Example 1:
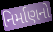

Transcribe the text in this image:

નિર્માણનો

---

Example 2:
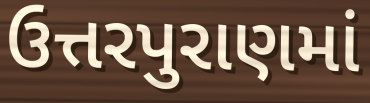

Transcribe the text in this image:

ઉત્તરપુરાણમાં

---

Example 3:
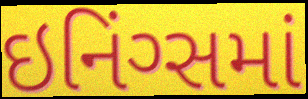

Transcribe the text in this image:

ઇનિંગ્સમાં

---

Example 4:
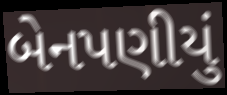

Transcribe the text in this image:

બેનપણીયું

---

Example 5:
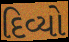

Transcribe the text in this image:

દિવ્યો